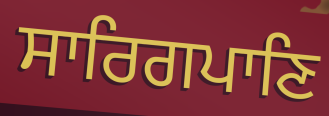
ਸਾਰਿਗਪਾਣਿ